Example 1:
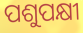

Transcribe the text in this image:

ପଶୁପକ୍ଷୀ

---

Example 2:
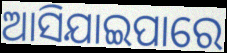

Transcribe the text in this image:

ଆସିଯାଇପାରେ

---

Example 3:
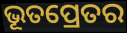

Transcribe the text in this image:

ଭୂତପ୍ରେତର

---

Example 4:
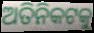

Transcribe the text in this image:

ଅତିନିକଟକୁ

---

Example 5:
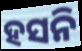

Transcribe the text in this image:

ହସନି